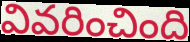
వివరించింది